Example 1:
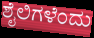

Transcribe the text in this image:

ಶೈಲಿಗಳೆಂದು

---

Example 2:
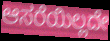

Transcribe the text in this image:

ಆಸರೆಯಿಲ್ಲದೇ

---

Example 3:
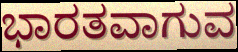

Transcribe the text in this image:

ಭಾರತವಾಗುವ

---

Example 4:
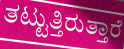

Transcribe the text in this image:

ತಟ್ಟುತ್ತಿರುತ್ತಾರೆ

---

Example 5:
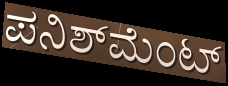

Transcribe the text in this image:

ಪನಿಶ್‌ಮೆಂಟ್